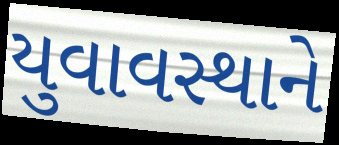
યુવાવસ્થાને